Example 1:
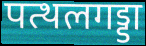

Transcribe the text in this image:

पत्थलगड्डा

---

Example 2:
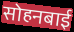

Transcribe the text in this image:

सोहनबाई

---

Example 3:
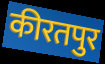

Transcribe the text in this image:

कीरतपुर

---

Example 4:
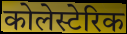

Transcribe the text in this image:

कोलेस्टेरिक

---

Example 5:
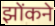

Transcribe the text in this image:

झोंकने